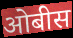
ओबीस